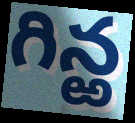
గిన్ఱ